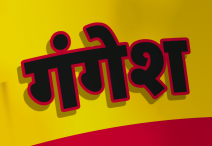
गंगेश